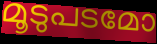
മൂടുപടമോ